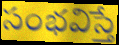
సంభవిస్తే